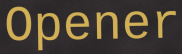
Opener